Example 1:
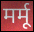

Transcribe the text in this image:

मर्मू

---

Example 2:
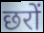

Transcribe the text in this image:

छरों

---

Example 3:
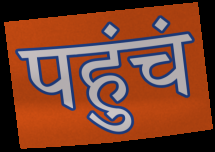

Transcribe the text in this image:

पहुंचं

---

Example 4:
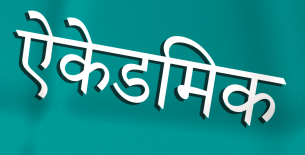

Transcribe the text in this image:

ऐकेडमिक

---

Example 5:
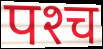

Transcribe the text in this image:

पश्च